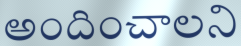
అందించాలని